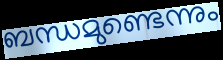
ബന്ധമുണ്ടെന്നും